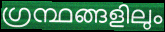
ഗ്രന്ഥങ്ങളിലും